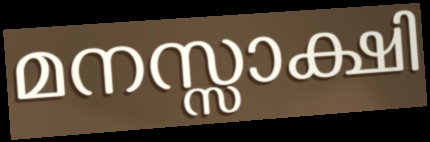
മനസ്സാക്ഷി